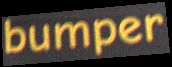
bumper